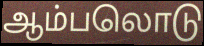
ஆம்பலொடு